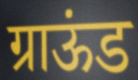
ग्राऊंड